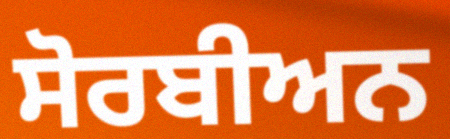
ਸੋਰਬੀਅਨ